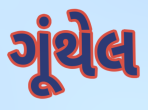
ગૂંથેલ